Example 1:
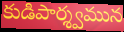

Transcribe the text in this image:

కుడిపార్శ్వమున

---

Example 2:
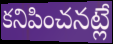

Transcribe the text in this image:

కనిపించనట్లే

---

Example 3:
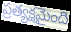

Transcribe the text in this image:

ప్రత్యక్షమైంది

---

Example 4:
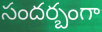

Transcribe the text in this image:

సందర్బంగా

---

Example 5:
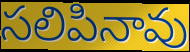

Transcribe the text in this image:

సలిపినావు